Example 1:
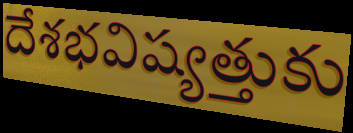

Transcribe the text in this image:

దేశభవిష్యత్తుకు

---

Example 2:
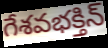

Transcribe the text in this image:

గేశవభక్తిన్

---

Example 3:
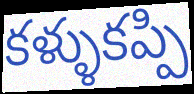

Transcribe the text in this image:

కళ్ళుకప్పి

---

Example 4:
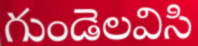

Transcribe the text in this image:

గుండెలవిసి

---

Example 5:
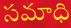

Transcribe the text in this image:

సమాధి